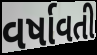
વર્ષાવતી